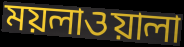
ময়লাওয়ালা